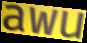
awu